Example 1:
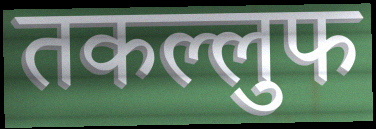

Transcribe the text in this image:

तकल्लुफ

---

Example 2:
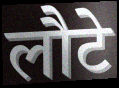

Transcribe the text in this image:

लौटे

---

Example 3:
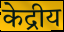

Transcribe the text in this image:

केद्रीय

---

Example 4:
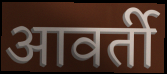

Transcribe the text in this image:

आवर्ती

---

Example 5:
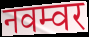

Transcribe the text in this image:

नवम्वर